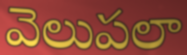
వెలుపలా